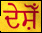
ਦੇਸ਼ੋਁ